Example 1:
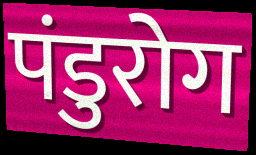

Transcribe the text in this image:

पंडुरोग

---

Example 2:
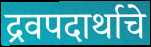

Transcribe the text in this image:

द्रवपदार्थाचे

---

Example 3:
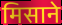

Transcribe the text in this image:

मिसाने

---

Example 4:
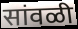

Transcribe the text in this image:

सांवळी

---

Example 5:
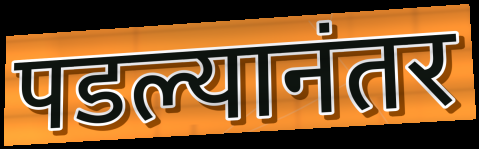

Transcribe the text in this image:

पडल्यानंतर